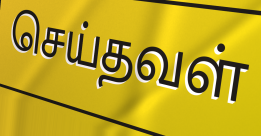
செய்தவள்